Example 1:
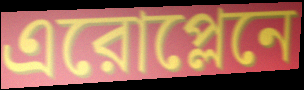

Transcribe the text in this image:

এরোপ্লেনে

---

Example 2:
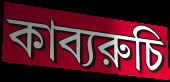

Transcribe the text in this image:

কাব্যরুচি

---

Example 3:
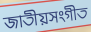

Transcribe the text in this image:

জাতীয়সংগীত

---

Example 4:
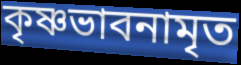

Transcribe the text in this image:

কৃষ্ণভাবনামৃত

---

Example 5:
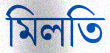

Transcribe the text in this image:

মিলতি